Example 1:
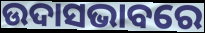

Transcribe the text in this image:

ଉଦାସଭାବରେ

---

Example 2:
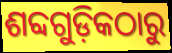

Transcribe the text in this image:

ଶବ୍ଦଗୁଡ଼ିକଠାରୁ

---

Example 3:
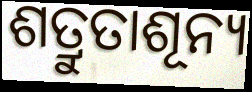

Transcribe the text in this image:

ଶତ୍ରୁତାଶୂନ୍ୟ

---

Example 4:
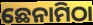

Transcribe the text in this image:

ଛେନାମିଠା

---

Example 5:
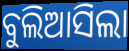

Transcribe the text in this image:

ବୁଲିଆସିଲା